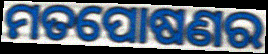
ମତପୋଷଣର